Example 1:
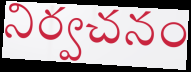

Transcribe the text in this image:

నిర్వచనం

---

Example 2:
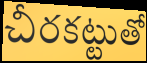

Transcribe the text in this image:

చీరకట్టుతో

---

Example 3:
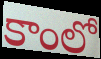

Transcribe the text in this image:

కాంలో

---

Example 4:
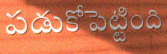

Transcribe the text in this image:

పడుకోపెట్టింది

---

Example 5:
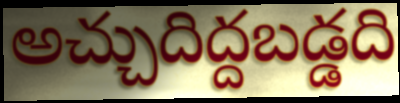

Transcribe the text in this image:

అచ్చుదిద్దబడ్డది